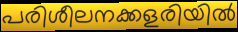
പരിശീലനക്കളരിയിൽ